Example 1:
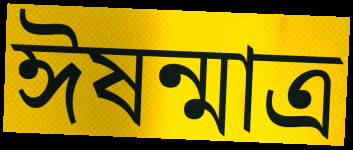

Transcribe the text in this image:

ঈষন্মাত্র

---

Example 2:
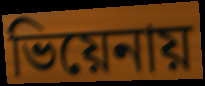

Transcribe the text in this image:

ভিয়েনায়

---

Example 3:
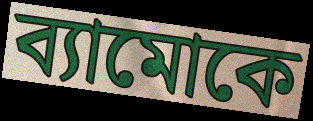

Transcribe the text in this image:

ব্যামোকে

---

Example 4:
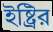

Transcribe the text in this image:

ইষ্ট্রির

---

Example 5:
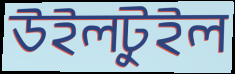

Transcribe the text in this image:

উইলটুইল